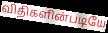
விதிகளின்படியே